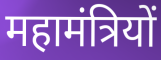
महामंत्रियों